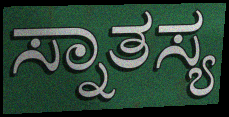
ಸ್ನಾತಸ್ಯ